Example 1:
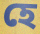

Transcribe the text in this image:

হে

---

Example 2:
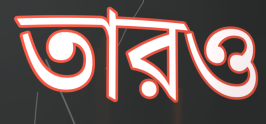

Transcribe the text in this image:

তারও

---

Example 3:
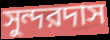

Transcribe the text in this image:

সুন্দরদাস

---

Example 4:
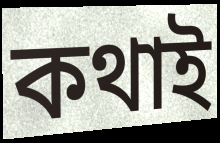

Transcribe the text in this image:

কথাই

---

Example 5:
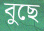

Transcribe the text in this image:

বুছে